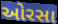
ઓરસા